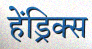
हेंड्रिक्स